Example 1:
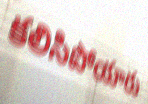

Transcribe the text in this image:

కలిసిపోయారు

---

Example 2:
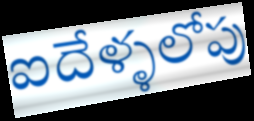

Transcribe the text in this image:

ఐదేళ్ళలోపు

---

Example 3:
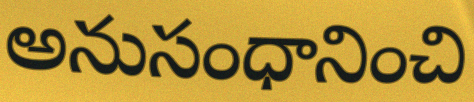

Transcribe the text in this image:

అనుసంధానించి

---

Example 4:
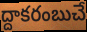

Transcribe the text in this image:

ద్దాకరంబుచే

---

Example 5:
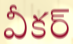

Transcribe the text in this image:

వీకర్